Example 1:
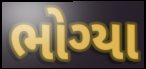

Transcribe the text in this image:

ભોગ્યા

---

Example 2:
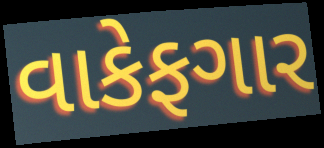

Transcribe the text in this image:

વાકેફગાર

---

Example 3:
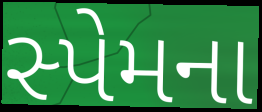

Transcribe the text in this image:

સ્પેમના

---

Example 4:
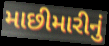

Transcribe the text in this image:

માછીમારીનું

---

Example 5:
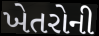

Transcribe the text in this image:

ખેતરોની